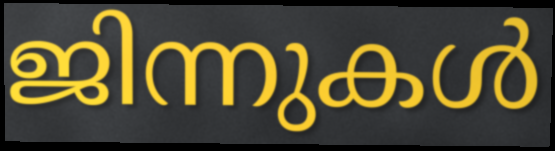
ജിന്നുകൾ